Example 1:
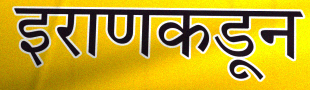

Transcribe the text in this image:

इराणकडून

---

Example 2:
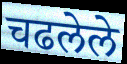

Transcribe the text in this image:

चढलेले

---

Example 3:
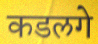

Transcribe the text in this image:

कडलगे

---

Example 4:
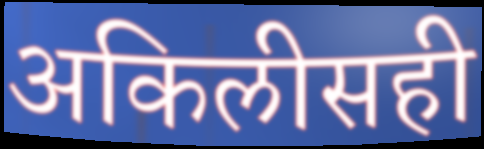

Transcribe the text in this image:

अकिलीसही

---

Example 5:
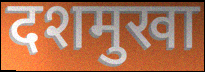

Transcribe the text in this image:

दशमुखा